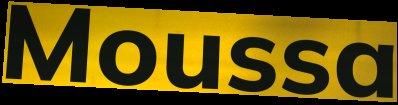
Moussa